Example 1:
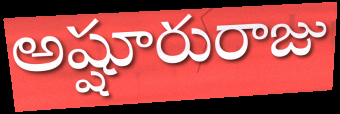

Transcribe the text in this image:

అష్షూరురాజు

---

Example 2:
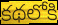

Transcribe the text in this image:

కథలోకి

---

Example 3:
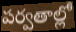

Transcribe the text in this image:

పర్వతాల్లో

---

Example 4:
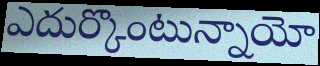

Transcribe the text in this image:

ఎదుర్కొంటున్నాయో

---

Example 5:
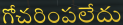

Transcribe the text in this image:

గోచరింపలేదు